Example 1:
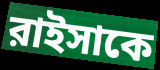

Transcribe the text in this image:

রাইসাকে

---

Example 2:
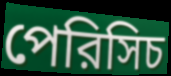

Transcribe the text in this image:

পেরিসিচ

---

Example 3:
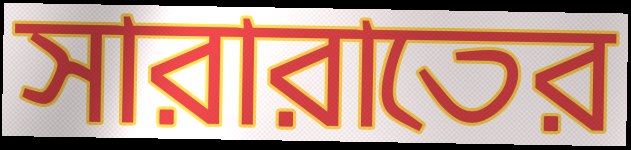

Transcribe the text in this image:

সারারাতের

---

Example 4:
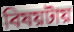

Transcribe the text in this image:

বিষয়টায়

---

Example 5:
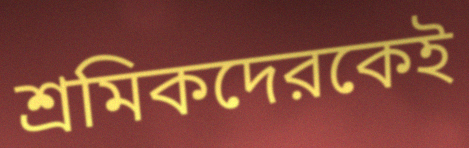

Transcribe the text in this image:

শ্রমিকদেরকেই